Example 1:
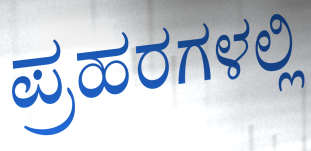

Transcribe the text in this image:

ಪ್ರಹರಗಳಲ್ಲಿ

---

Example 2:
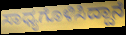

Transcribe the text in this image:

ಸಾಧ್ಯಗೊಳಿಸಿದ್ದಾನೆ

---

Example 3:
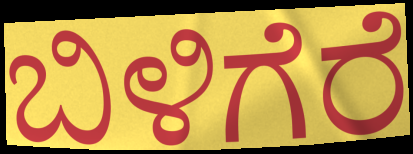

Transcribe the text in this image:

ಬಿಳಿಗೆರೆ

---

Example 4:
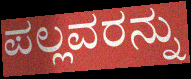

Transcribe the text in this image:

ಪಲ್ಲವರನ್ನು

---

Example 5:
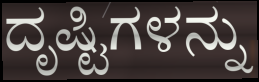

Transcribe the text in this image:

ದೃಷ್ಟಿಗಳನ್ನು